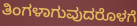
ತಿಂಗಳಾಗುವುದರೊಳಗೆ